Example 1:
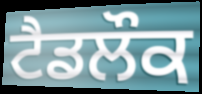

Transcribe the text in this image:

ਟੈਡਲੌਕ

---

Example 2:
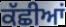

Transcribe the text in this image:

ਕੱਛੀਆਂ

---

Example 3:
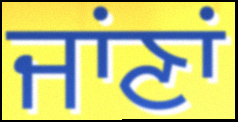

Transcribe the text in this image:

ਜਾਂਣਾਂ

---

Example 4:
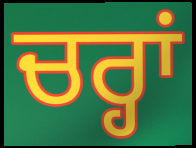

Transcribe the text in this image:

ਚਰ੍ਹਾਂ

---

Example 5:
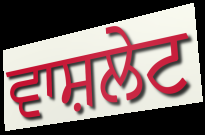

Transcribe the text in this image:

ਵਾਸ਼ਲੇਟ